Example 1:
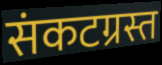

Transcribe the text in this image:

संकटग्रस्‍त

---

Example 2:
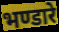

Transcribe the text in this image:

भण्डारे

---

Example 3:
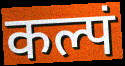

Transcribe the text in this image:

कल्पं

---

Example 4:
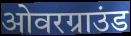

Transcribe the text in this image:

ओवरग्राउंड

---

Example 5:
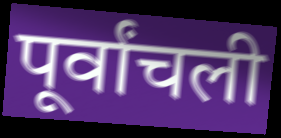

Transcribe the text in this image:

पूर्वांचली